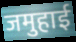
जमुहाई